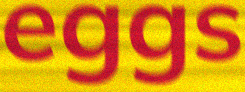
eggs